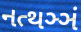
નત્થઞ્ઞં